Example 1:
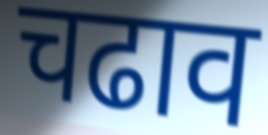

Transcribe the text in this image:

चढाव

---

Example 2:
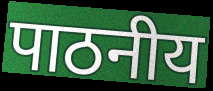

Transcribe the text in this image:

पाठनीय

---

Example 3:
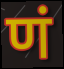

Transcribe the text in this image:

णं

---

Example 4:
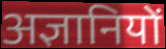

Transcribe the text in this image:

अज्ञानियों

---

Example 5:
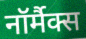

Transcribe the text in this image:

नॉर्मैक्स